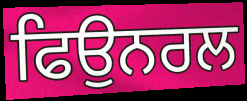
ਫਿਉਨਰਲ